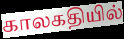
காலகதியில்